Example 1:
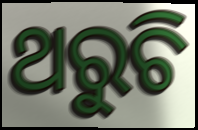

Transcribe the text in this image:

ଥରୁଚି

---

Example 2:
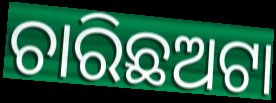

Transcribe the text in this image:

ଚାରିଛଅଟା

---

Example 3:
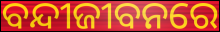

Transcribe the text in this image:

ବନ୍ଦୀଜୀବନରେ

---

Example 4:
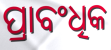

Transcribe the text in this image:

ପ୍ରାବଂଧିକ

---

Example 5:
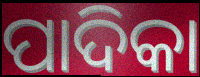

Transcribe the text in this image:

ପାଦିକା